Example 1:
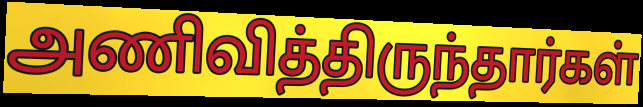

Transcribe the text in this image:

அணிவித்திருந்தார்கள்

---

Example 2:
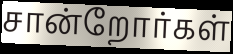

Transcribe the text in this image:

சான்றோர்கள்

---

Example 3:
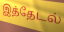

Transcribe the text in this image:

இத்தேடல்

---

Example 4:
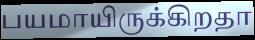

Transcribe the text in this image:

பயமாயிருக்கிறதா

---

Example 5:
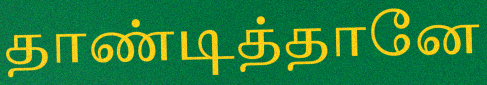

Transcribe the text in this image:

தாண்டித்தானே